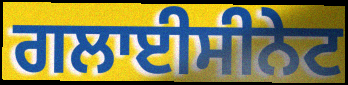
ਗਲਾਈਸੀਨੇਟ